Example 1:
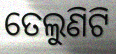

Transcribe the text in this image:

ତେଲୁଣିଟି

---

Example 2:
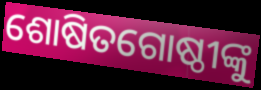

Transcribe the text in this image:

ଶୋଷିତଗୋଷ୍ଠୀଙ୍କୁ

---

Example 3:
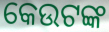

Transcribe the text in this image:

କେଉଟଙ୍କ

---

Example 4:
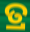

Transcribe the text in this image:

ତ୍ର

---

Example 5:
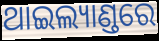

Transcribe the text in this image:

ଥାଇଲ୍ୟାଣ୍ଡରେ